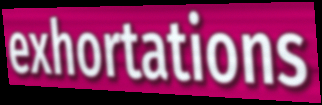
exhortations